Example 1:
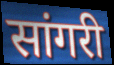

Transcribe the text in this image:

सांगरी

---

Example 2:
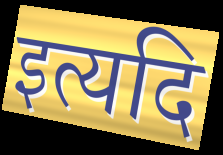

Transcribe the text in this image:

इत्यदि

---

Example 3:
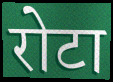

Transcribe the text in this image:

रोटा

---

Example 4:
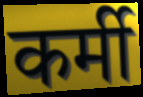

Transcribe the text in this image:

कर्मी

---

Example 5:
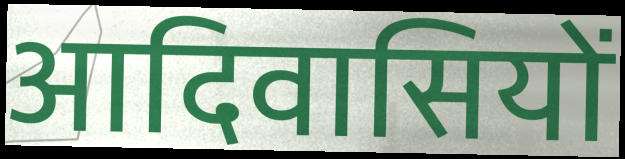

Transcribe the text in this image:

आदिवासियों